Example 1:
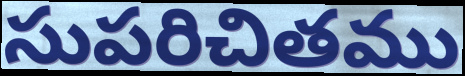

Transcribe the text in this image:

సుపరిచితము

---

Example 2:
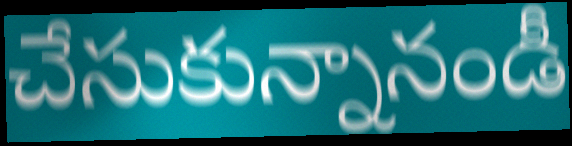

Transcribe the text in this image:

చేసుకున్నానండీ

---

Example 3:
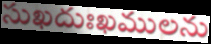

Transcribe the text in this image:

సుఖదుఃఖములను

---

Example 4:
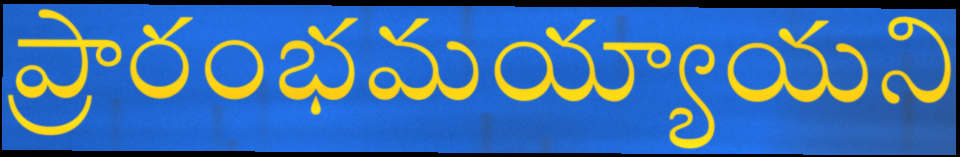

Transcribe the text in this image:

ప్రారంభమయ్యాయని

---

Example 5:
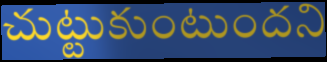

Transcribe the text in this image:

చుట్టుకుంటుందని